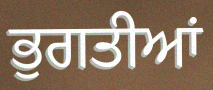
ਭੁਗਤੀਆਂ